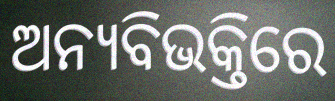
ଅନ୍ୟବିଭକ୍ତିରେ